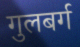
गुलबर्ग